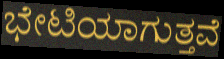
ಭೇಟಿಯಾಗುತ್ತವೆ